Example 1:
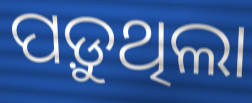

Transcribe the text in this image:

ପଡ଼ୁଥିଲା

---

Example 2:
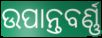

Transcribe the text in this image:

ଉପାନ୍ତବର୍ଣ୍ଣ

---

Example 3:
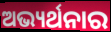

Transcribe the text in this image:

ଅଭ୍ୟର୍ଥନାର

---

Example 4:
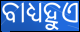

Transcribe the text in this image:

ବାଧ୍ୟହୁଏ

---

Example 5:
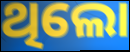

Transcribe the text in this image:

ଥିଲୋ